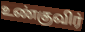
உண்குவிர்